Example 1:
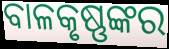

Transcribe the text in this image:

ବାଳକୃଷ୍ଣଙ୍କର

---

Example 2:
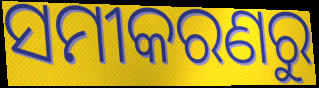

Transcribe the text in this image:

ସମୀକରଣରୁ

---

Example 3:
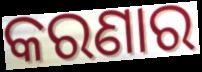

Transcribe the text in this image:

କରଣାର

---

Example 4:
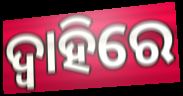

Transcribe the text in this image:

ଦ୍ୱାହିରେ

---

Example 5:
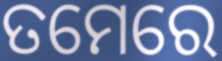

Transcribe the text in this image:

ତମେରେ